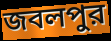
জবলপুর